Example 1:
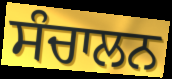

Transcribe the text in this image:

ਸੰਚਾਲਨ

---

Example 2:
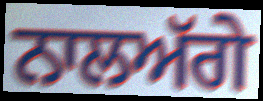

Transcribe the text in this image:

ਨਾਲਅੱਗੇ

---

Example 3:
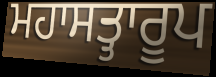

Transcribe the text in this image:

ਮਹਾਸਤ੍ਤਾਰੂਪ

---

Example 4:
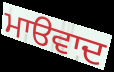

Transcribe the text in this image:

ਮਾੳਵਾਦ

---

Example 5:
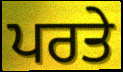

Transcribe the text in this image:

ਪਰਤੇ